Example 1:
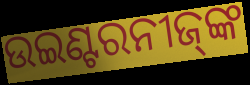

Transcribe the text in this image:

ଉଇଣ୍ଟରନୀଜ୍‌ଙ୍କ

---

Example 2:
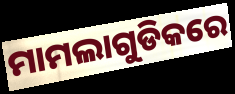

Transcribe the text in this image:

ମାମଲାଗୁଡିକରେ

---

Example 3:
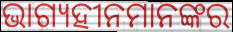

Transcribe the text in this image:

ଭାଗ୍ୟହୀନମାନଙ୍କର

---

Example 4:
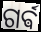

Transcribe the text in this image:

ଗର୍ଵ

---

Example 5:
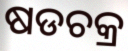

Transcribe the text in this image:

ଷଡଚକ୍ର